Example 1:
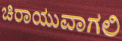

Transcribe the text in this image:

ಚಿರಾಯುವಾಗಲಿ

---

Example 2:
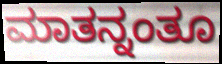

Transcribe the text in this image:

ಮಾತನ್ನಂತೂ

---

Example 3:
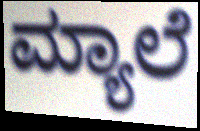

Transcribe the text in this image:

ಮ್ಯಾಲೆ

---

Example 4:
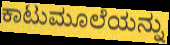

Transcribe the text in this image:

ಕಾಟುಮೂಲೆಯನ್ನು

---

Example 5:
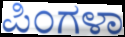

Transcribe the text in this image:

ಪಿಂಗಳಾ